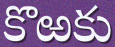
కొఱకు